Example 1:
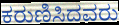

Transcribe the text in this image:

ಕರುಣಿಸಿದವರು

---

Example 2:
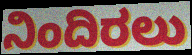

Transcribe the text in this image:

ನಿಂದಿರಲು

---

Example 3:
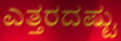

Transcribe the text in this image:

ಎತ್ತರದಷ್ಟು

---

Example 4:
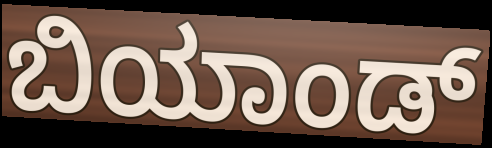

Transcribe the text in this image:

ಬಿಯಾಂಡ್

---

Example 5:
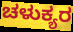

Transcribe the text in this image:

ಚಳುಕ್ಯರ